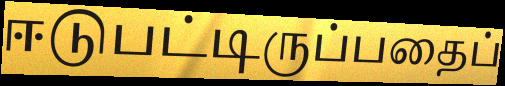
ஈடுபட்டிருப்பதைப்